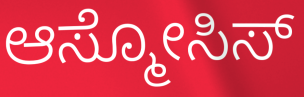
ಆಸ್ಮೋಸಿಸ್